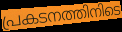
പ്രകടനത്തിനിടെ